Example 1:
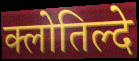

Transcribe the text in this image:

क्लोतिल्दे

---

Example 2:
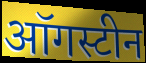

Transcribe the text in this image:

ऑगस्टीन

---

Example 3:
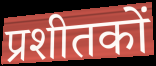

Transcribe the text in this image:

प्रशीतकों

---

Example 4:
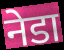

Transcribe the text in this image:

नेडा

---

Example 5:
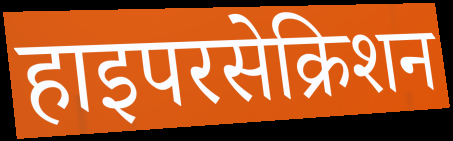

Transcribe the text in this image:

हाइपरसेक्रिशन